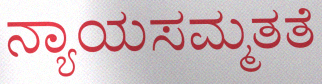
ನ್ಯಾಯಸಮ್ಮತತೆ